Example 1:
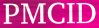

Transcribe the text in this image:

PMCID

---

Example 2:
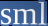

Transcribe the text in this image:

sml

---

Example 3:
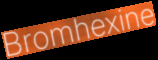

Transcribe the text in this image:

Bromhexine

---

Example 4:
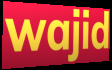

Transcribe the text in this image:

wajid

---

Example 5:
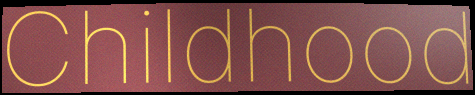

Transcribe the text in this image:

Childhood